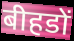
बीहडों